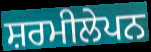
ਸ਼ਰਮੀਲੇਪਨ